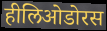
हीलिओडोरस